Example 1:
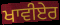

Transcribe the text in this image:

ਖਾਵੀਏਰ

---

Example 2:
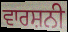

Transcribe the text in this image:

ਵਾਰਸ਼ਨੀ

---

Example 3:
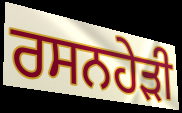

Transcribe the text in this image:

ਰਸਨਹੇੜੀ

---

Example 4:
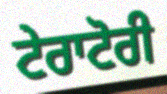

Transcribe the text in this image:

ਟੇਰਾਟੋਰੀ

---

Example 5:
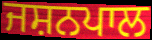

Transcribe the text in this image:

ਜਸ਼ਨਪਾਲ